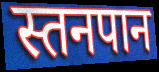
स्तनपान